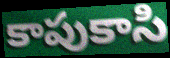
కాపుకాసి